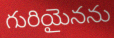
గురియైనను